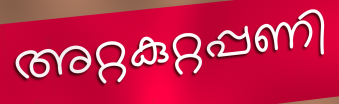
അറ്റകുറ്റപ്പണി